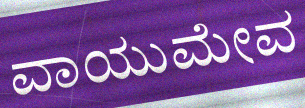
ವಾಯುಮೇವ